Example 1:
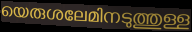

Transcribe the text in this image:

യെരുശലേമിനടുത്തുള്ള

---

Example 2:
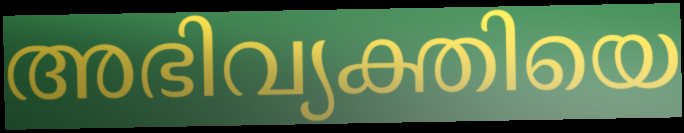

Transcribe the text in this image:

അഭിവ്യക്തിയെ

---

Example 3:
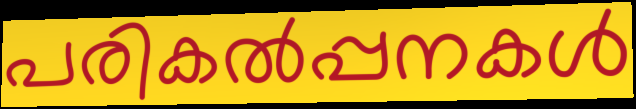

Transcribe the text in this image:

പരികൽപ്പനകൾ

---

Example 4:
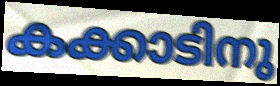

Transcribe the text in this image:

കക്കാടിനു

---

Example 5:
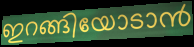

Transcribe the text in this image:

ഇറങ്ങിയോടാൻ